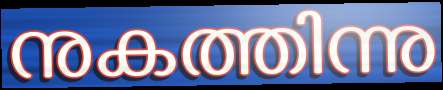
നുകത്തിന്നു